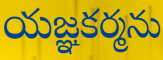
యజ్ఞకర్మను